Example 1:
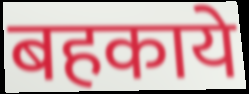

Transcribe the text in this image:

बहकाये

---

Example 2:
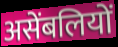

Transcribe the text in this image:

असेंबलियों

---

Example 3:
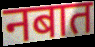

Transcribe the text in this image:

नबात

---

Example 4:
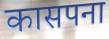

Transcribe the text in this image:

कासपना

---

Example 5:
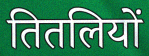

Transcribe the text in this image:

तितलियों